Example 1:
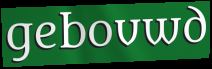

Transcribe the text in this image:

gebouwd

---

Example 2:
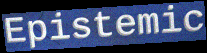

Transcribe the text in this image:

Epistemic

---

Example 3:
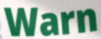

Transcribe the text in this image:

Warn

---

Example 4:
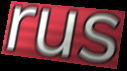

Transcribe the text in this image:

rus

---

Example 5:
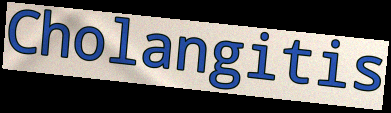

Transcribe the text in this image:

Cholangitis